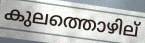
കുലത്തൊഴില്